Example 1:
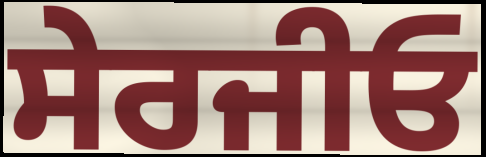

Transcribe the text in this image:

ਸੇਰਜੀਓ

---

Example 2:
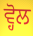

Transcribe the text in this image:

ਵ੍ਹੋਲ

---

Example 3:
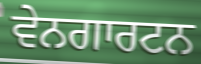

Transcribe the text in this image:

ਵੇਨਗਾਰਟਨ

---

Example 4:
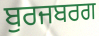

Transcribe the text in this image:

ਬੁਰਜਬਰਗ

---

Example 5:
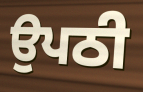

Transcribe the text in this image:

ਉਪਠੀ